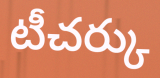
టీచర్కు